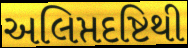
અલિપ્તદષ્ટિથી